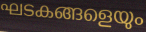
ഘടകങ്ങളെയും